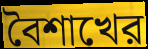
বৈশাখের